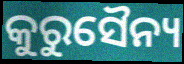
କୁରୁସୈନ୍ୟ